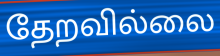
தேறவில்லை